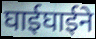
घाईघाईने